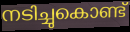
നടിച്ചുകൊണ്ട്